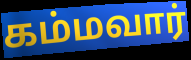
கம்மவார்